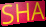
SHA